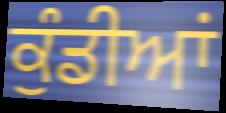
ਕੁੰਡੀਆਂ